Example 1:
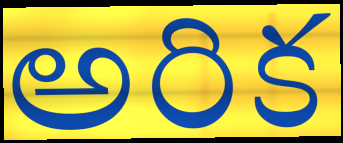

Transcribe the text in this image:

అరిక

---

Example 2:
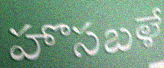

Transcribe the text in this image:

హొసబళే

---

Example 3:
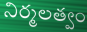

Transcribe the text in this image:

నిర్మలత్వం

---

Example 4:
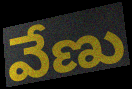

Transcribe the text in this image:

వేణు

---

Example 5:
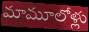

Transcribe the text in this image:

మామూలోళ్లు